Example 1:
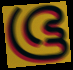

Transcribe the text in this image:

ഭൂ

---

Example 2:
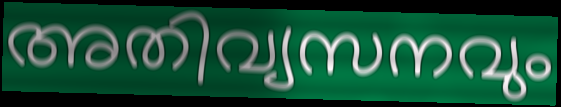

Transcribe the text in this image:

അതിവ്യസനവും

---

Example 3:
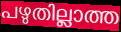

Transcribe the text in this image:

പഴുതില്ലാത്ത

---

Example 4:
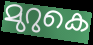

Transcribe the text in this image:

മുറുകെ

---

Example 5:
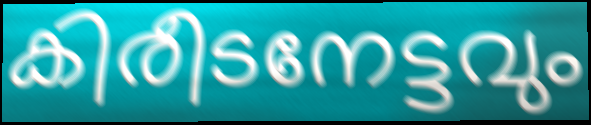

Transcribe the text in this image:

കിരീടനേട്ടവും